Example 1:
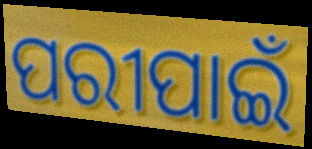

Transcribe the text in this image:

ପରୀପାଇଁ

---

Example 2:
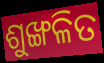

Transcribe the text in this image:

ଶୁଙ୍ଖଳିତ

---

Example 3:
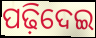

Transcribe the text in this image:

ପଢ଼ିଦେଇ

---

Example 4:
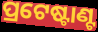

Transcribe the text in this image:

ପ୍ରଟେଷ୍ଟାଣ୍ଟ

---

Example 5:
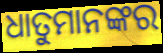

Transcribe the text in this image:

ଧାତୁମାନଙ୍କର